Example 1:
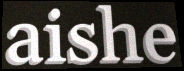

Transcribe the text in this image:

aishe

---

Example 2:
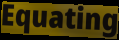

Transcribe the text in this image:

Equating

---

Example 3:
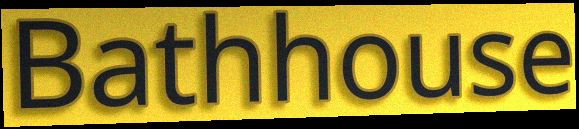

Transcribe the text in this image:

Bathhouse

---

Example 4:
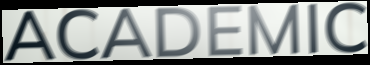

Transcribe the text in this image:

ACADEMIC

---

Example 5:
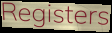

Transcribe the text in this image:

Registers